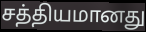
சத்தியமானது